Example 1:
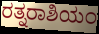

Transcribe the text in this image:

ರತ್ನರಾಶಿಯಂ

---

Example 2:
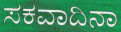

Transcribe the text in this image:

ಸಕವಾದಿನಾ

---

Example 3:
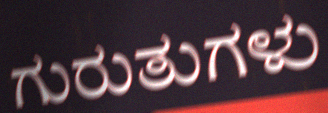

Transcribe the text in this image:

ಗುರುತುಗಳು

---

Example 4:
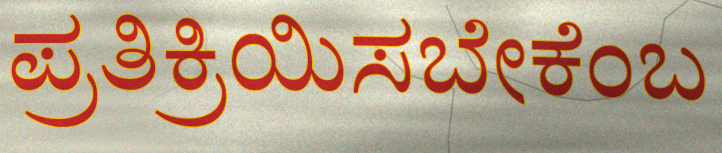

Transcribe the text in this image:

ಪ್ರತಿಕ್ರಿಯಿಸಬೇಕೆಂಬ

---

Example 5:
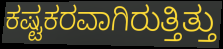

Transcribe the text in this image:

ಕಷ್ಟಕರವಾಗಿರುತ್ತಿತ್ತು